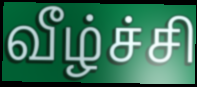
வீழ்ச்சி